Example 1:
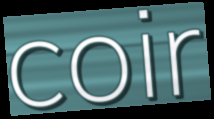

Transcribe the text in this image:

coir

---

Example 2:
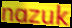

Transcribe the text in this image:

nazuk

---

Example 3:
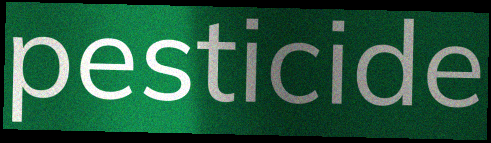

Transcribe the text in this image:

pesticide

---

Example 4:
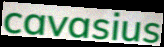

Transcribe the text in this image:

cavasius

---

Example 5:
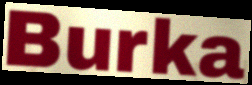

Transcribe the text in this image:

Burka